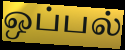
ஒப்பல்